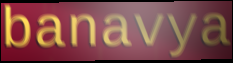
banavya